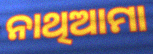
ନାଥିଆମା